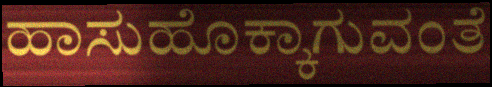
ಹಾಸುಹೊಕ್ಕಾಗುವಂತೆ